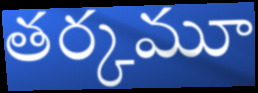
తర్కమూ